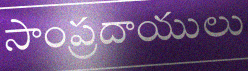
సాంప్రదాయులు